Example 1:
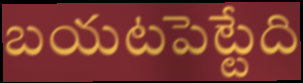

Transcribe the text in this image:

బయటపెట్టేది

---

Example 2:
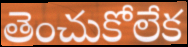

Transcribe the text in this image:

తెంచుకోలేక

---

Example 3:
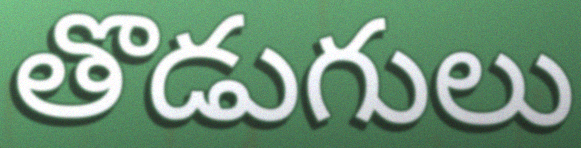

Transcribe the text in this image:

తొడుగులు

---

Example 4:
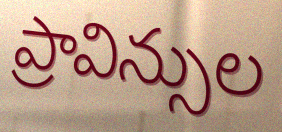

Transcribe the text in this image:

ప్రావిన్సుల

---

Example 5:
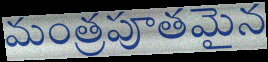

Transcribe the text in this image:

మంత్రపూతమైన